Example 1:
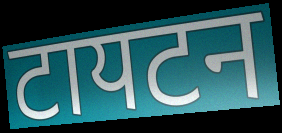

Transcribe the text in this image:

टायटन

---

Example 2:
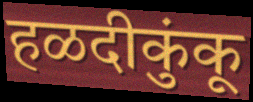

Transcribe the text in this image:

हळदीकुंकू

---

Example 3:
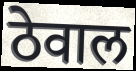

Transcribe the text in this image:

ठेवाल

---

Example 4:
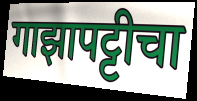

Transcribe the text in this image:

गाझापट्टीचा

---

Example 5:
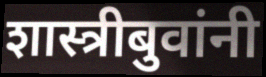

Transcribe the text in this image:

शास्त्रीबुवांनी